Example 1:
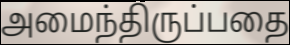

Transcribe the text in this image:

அமைந்திருப்பதை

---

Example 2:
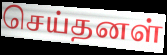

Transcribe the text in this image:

செய்தனள்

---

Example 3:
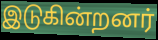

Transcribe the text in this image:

இடுகின்றனர்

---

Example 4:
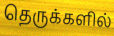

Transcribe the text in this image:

தெருக்களில்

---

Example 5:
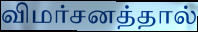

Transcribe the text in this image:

விமர்சனத்தால்